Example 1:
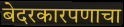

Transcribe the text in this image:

बेदरकारपणाचा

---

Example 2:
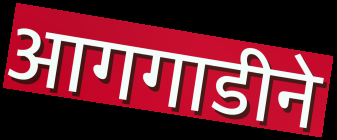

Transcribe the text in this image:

आगगाडीने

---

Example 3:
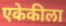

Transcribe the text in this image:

एकेकीला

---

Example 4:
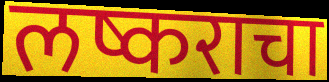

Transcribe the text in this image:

लष्कराचा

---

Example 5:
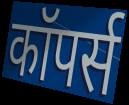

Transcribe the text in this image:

कॉपर्स